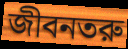
জীবনতরু